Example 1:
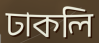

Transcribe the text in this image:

ঢাকলি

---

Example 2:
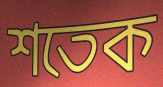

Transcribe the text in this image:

শতেক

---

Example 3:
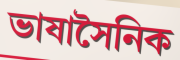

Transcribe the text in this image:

ভাষাসৈনিক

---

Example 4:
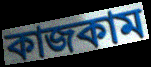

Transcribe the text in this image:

কাজকাম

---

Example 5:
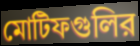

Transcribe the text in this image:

মোটিফগুলির